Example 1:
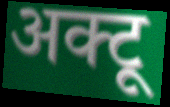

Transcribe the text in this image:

अक्टू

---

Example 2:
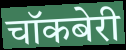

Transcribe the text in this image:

चॉकबेरी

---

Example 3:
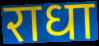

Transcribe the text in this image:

राधा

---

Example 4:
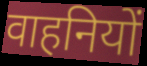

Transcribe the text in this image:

वाहनियों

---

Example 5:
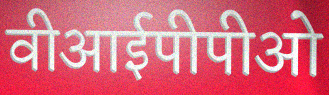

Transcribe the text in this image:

वीआईपीपीओ